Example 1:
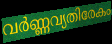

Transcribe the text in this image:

വർണ്ണവ്യതിരേകം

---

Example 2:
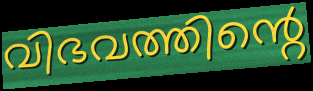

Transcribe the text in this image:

വിഭവത്തിന്റെ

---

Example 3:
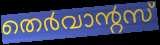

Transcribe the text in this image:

തെർവാന്റസ്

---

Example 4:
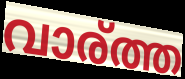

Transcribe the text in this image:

വാര്ത്ത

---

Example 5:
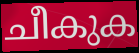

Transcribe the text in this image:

ചീകുക